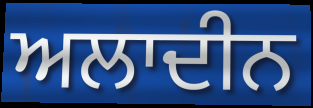
ਅਲਾਦੀਨ